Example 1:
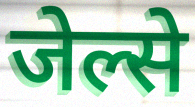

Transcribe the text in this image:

जेल्से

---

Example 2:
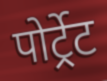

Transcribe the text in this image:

पोर्ट्रेट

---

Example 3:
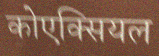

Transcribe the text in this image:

कोएक्सियल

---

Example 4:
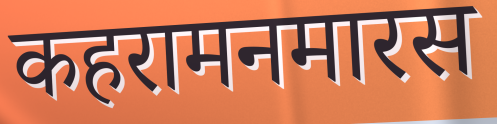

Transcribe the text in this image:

कहरामनमारस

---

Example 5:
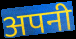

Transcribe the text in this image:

अपनी